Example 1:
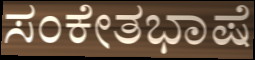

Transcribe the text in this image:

ಸಂಕೇತಭಾಷೆ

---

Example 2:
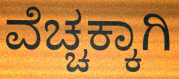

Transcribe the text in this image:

ವೆಚ್ಚಕ್ಕಾಗಿ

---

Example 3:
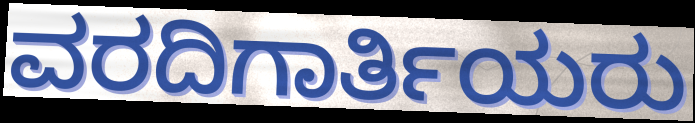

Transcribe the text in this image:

ವರದಿಗಾರ್ತಿಯರು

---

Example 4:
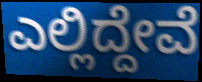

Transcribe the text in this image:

ಎಲ್ಲಿದ್ದೇವೆ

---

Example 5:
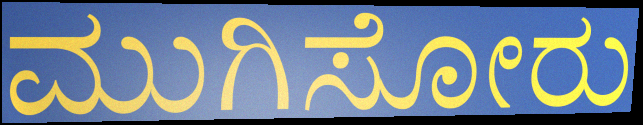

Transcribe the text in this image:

ಮುಗಿಸೋರು